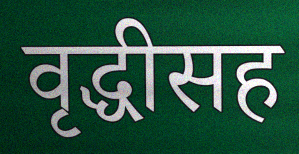
वृद्धीसह